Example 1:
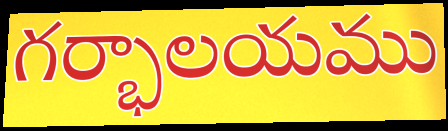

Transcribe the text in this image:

గర్భాలయము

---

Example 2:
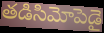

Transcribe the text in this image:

తడిసిమోపెడై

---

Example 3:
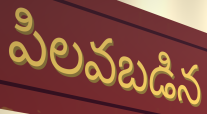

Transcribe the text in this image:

పిలవబడిన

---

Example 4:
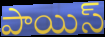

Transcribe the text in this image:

పాయిస్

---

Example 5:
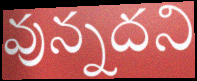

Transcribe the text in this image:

వున్నదని